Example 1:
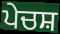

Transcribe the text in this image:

ਪੇਚਸ਼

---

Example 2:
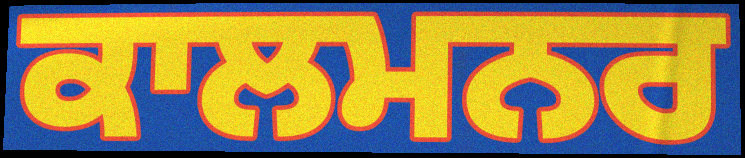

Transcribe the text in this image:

ਕਾਲਮਨਰ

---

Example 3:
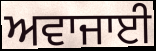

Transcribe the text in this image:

ਅਵਾਜਾਈ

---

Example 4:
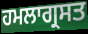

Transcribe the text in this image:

ਹਮਲਾਗ੍ਰਸਤ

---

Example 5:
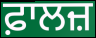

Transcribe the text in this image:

ਫ਼ਾਲਜ਼